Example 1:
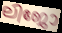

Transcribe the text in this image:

ലിജോ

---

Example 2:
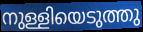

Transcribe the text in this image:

നുള്ളിയെടുത്തു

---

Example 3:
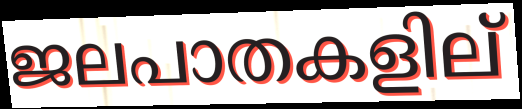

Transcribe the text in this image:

ജലപാതകളില്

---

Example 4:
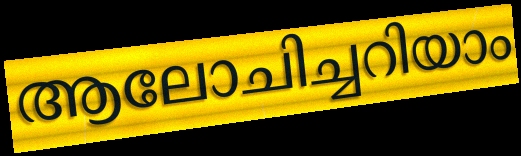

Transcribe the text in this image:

ആലോചിച്ചറിയാം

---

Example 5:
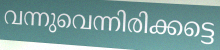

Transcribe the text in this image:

വന്നുവെന്നിരിക്കട്ടെ